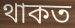
থাকত